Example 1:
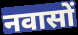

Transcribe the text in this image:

नवासों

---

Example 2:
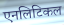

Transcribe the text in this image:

एनलिटिकल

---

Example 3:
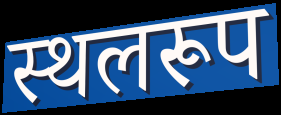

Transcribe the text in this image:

स्थलरूप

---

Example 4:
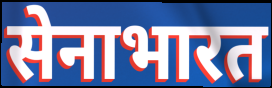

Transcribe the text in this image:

सेनाभारत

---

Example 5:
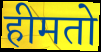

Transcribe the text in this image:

हीमतो